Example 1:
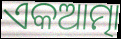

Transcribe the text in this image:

ଏକଆତ୍ମା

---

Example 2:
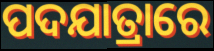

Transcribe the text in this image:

ପଦଯାତ୍ରାରେ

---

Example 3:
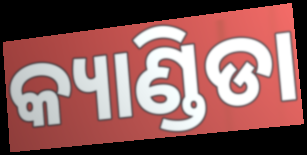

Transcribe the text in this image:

କ୍ୟାଣ୍ଡିଡା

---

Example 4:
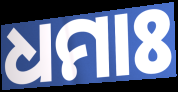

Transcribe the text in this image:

ଧମାଃ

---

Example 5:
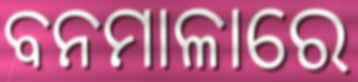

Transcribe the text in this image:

ବନମାଳାରେ